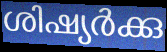
ശിഷ്യർക്കു